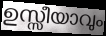
ഉസ്സീയാവും